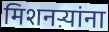
मिशनऱ्‍यांना